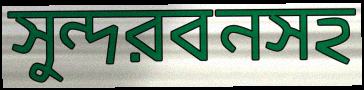
সুন্দরবনসহ